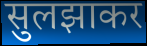
सुलझाकर